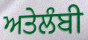
ਅਤੇਲੰਬੀ